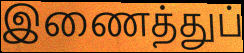
இணைத்துப்